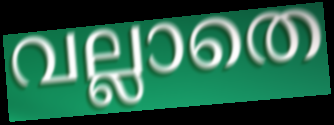
വല്ലാതെ